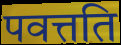
पवत्तति